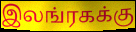
இலங்ரகக்கு